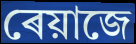
ৰেয়াজে